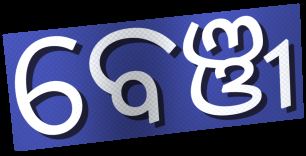
ବେଞ୍ଜ